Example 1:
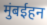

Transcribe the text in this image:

मुंबईहन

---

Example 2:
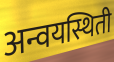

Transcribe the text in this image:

अन्वयस्थिती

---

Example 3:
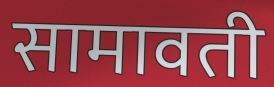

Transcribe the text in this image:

सामावती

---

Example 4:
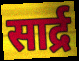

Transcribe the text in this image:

सार्द्र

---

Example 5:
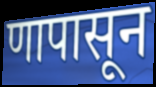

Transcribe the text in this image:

णापासून